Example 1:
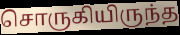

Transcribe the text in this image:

சொருகியிருந்த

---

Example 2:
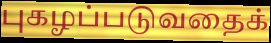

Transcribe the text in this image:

புகழப்படுவதைக்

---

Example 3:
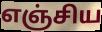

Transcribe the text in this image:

எஞ்சிய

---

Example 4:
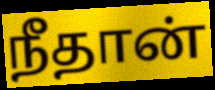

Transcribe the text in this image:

நீதான்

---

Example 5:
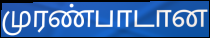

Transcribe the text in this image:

முரண்பாடான